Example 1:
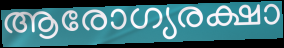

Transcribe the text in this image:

ആരോഗ്യരക്ഷാ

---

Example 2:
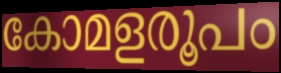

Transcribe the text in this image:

കോമളരൂപം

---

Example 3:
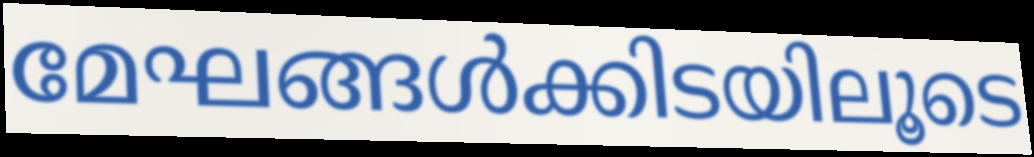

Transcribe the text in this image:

മേഘങ്ങൾക്കിടയിലൂടെ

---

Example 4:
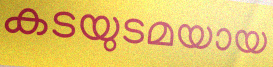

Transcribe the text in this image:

കടയുടമയായ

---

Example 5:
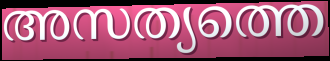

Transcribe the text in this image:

അസത്യത്തെ